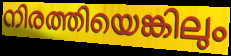
നിരത്തിയെങ്കിലും